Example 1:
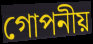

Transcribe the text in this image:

গোপনীয়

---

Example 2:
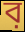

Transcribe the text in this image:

ব়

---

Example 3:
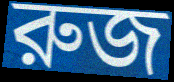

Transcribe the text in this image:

রুজ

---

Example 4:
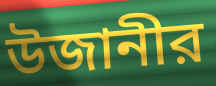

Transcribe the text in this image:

উজানীর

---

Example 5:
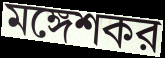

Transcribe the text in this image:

মঙ্গেশকর